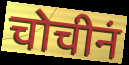
चोचीनं